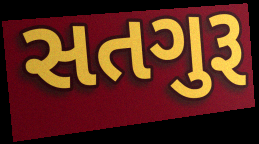
સતગુરૂ